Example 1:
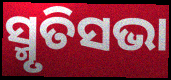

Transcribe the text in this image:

ସ୍ମୃତିସଭା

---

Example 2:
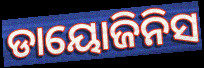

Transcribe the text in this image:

ଡାୟୋଜିନିସ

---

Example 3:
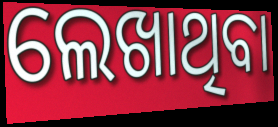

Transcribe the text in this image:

ଲେଖାଥିବା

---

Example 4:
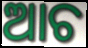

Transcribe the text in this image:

ଆଚ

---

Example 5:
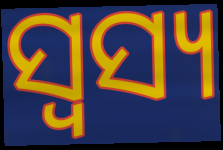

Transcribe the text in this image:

ସ୍ଵସ୍ୟ